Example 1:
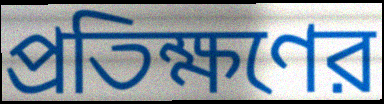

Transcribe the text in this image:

প্রতিক্ষণের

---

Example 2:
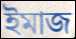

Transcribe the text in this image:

ইমাজ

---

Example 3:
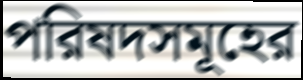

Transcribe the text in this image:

পরিষদসমূহের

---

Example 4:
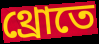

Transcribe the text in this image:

থ্রোতে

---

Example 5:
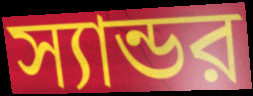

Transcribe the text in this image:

স্যান্ডর